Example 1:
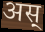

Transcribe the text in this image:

अस्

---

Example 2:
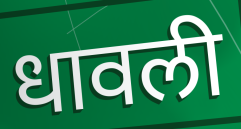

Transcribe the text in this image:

धावली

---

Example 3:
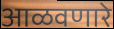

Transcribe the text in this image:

आळवणारे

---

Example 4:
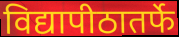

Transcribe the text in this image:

विद्यापीठातर्फे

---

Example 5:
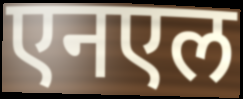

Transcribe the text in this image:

एनएल